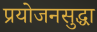
प्रयोजनसुद्धा